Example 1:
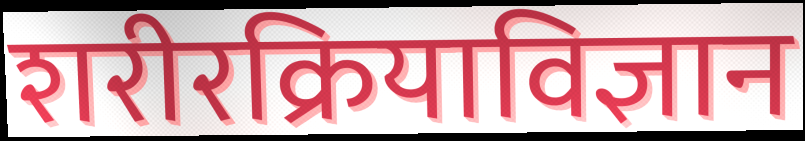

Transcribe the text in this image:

शरीरक्रियाविज्ञान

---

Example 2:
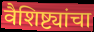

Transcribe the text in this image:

वैशिष्ट्यांचा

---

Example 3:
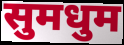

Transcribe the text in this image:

सुमधुम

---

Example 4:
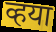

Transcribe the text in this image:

व्हया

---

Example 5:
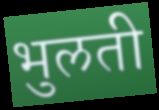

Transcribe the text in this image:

भुलती